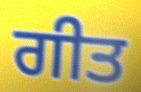
ਗੀਤ